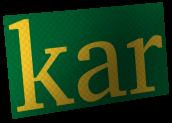
kar